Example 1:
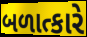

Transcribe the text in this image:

બળાત્કારે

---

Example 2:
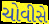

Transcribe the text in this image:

ચોવીસે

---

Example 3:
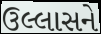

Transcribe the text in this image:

ઉલ્લાસને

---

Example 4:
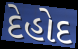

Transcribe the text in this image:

દેહોદ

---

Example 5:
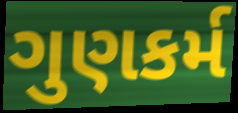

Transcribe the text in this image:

ગુણકર્મ